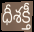
ధీశక్తీ